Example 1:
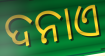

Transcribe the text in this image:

ଦନାଏ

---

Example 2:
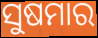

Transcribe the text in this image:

ସୁଷମାର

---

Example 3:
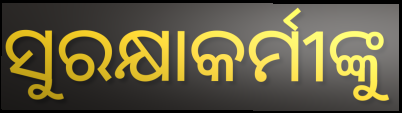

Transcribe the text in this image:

ସୁରକ୍ଷାକର୍ମୀଙ୍କୁ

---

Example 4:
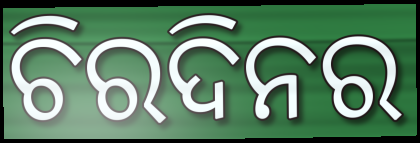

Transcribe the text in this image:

ଚିରଦିନର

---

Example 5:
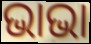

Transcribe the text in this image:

ଭାଭା